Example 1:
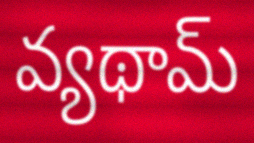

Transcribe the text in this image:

వ్యథామ్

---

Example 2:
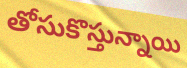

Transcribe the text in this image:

తోసుకొస్తున్నాయి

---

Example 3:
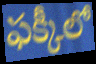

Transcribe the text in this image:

ఫక్కీలో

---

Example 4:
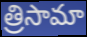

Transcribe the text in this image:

త్రిసామా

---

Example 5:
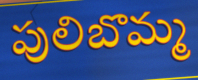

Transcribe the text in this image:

పులిబొమ్మ